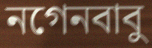
নগেনবাবু